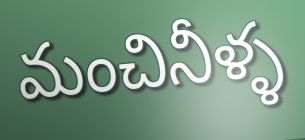
మంచినీళ్ళ